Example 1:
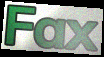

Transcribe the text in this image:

Fax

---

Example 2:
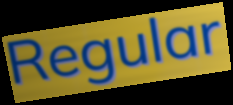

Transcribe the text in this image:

Regular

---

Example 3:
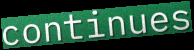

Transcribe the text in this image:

continues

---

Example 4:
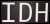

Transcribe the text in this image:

IDH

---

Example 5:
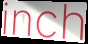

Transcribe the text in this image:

inch